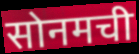
सोनमची